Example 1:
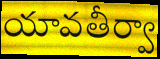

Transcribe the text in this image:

యావతీర్వా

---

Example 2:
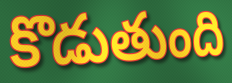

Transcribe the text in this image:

కొడుతుంది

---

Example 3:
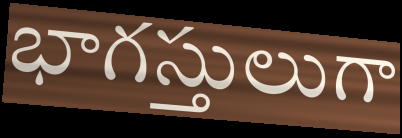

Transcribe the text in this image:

భాగస్తులుగా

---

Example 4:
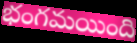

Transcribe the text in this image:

భంగమయింది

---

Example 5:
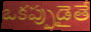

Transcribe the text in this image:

ఒకప్పుడైతే